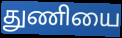
துணியை